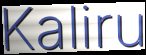
Kaliru